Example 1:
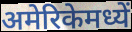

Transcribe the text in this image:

अमेरिकेमध्यें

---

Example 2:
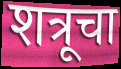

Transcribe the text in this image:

शत्रूचा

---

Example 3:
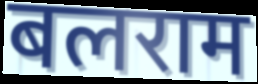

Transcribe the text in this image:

बलराम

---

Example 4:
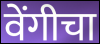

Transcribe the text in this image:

वेंगीचा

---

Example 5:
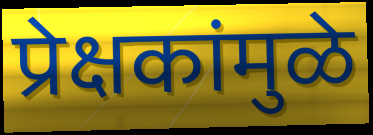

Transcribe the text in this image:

प्रेक्षकांमुळे